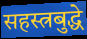
सहस्त्रबुद्धे